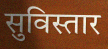
सुविस्तार